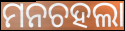
ମନଚହଲା